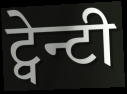
ट्वेन्टी